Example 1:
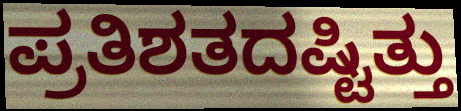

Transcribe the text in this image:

ಪ್ರತಿಶತದಷ್ಟಿತ್ತು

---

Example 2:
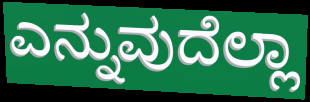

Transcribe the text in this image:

ಎನ್ನುವುದೆಲ್ಲಾ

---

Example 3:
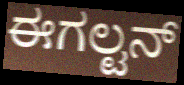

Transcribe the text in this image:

ಈಗಲ್ಟನ್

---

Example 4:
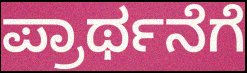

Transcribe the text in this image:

ಪ್ರಾರ್ಥನೆಗೆ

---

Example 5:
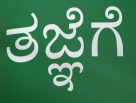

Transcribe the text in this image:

ತಜ್ಞೆಗೆ